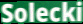
Solecki